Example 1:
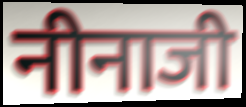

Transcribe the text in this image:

नीनाजी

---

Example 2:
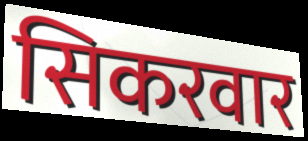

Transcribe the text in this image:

सिकरवार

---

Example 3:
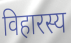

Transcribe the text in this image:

विहारस्य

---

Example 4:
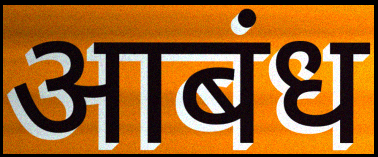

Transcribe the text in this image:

आबंध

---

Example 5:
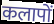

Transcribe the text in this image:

कलापों